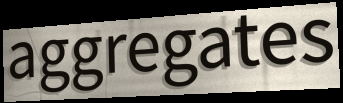
aggregates